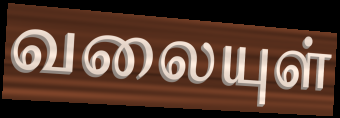
வலையுள்